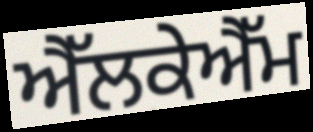
ਐੱਲਕੇਐੱਮ